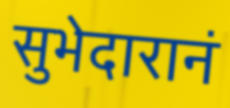
सुभेदारानं